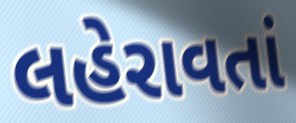
લહેરાવતાં